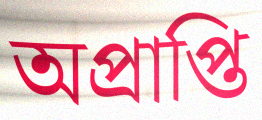
অপ্রাপ্তি